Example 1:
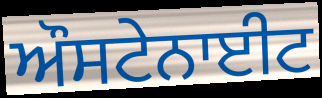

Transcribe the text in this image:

ਔਸਟੇਨਾਈਟ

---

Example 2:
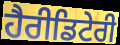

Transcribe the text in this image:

ਹੈਰੀਡਿਟੇਰੀ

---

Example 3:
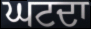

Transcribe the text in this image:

ਘਟਦਾ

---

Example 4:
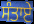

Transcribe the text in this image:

ਸੰਤਾਏ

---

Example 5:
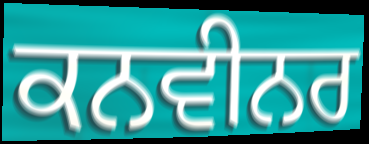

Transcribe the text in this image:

ਕਨਵੀਨਰ